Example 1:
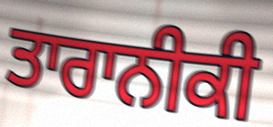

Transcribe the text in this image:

ਤਾਰਾਨੀਕੀ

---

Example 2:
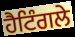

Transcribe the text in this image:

ਹੈਟਿੰਗਲੇ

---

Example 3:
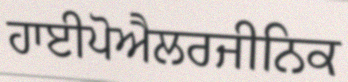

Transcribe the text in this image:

ਹਾਈਪੋਐਲਰਜੀਨਿਕ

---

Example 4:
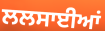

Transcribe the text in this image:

ਲਲਸਾਈਆਂ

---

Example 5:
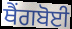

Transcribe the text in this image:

ਥੈਂਗਬੋਈ